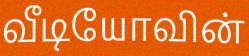
வீடியோவின்